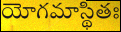
యోగమాస్థితః